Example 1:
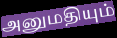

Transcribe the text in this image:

அனுமதியும்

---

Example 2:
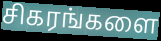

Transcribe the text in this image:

சிகரங்களை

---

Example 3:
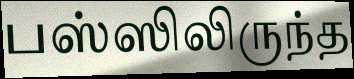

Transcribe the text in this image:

பஸ்ஸிலிருந்த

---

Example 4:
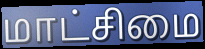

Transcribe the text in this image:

மாட்சிமை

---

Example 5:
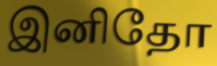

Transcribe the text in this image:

இனிதோ